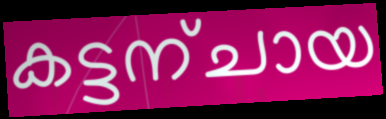
കട്ടന്ചായ